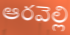
ఆరవెల్లి